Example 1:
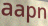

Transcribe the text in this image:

aapn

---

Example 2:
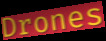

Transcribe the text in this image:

Drones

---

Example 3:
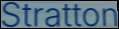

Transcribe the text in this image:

Stratton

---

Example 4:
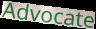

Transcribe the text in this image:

Advocate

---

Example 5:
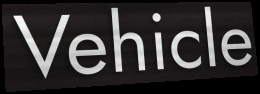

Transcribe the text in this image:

Vehicle